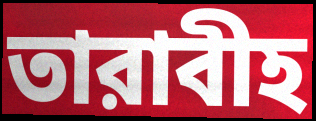
তারাবীহ